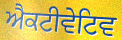
ਐਕਟੀਵੇਟਿਵ